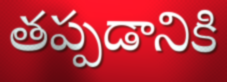
తప్పడానికి